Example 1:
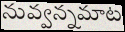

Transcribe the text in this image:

నువ్వన్నమాట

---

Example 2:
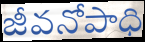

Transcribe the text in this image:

జీవనోపాధి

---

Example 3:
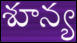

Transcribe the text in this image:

శూన్య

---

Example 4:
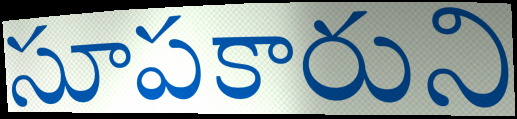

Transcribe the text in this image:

సూపకారుని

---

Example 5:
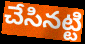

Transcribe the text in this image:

చేసినట్టి